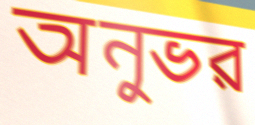
অনুভৱ